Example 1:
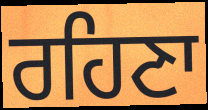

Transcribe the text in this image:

ਰਹਿਣਾ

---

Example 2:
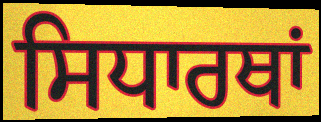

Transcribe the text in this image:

ਸਿਧਾਰਥਾਂ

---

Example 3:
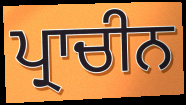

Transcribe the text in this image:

ਪ੍ਰਾਚੀਨ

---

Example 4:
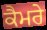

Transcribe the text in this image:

ਕੈਮਰੇ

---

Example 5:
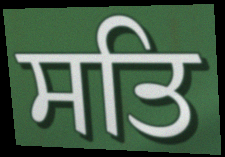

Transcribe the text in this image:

ਸਤਿ